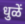
धुळें